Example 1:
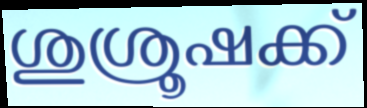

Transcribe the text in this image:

ശുശ്രൂഷക്ക്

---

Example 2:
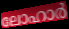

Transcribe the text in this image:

ലോഹാർ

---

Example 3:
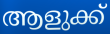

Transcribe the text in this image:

ആളുക്ക്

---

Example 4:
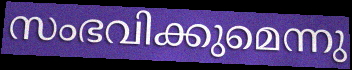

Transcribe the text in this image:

സംഭവിക്കുമെന്നു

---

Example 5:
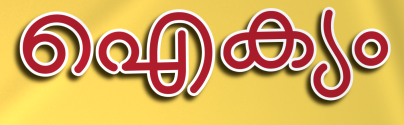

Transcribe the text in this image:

ഐക്യം